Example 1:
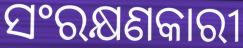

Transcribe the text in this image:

ସଂରକ୍ଷଣକାରୀ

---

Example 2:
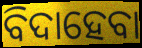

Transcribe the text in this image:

ବିଦାହେବା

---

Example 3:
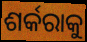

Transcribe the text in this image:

ଶର୍କରାକୁ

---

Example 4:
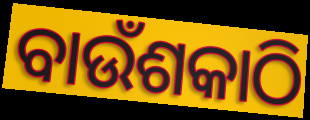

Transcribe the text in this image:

ବାଉଁଶକାଠି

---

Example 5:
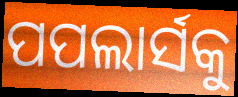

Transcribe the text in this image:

ପପଲାର୍ସକୁ